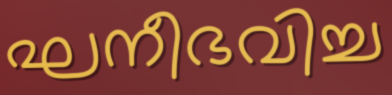
ഘനീഭവിച്ച